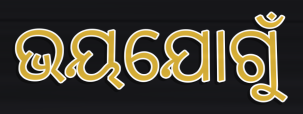
ଭୟଯୋଗୁଁ